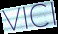
VICI